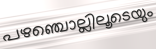
പഴഞ്ചൊല്ലിലൂടെയും